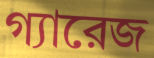
গ্যারেজ